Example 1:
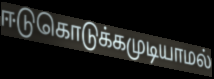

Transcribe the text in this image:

ஈடுகொடுக்கமுடியாமல்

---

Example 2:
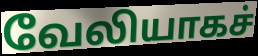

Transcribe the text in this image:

வேலியாகச்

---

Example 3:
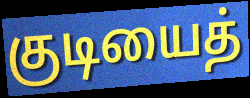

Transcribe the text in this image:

குடியைத்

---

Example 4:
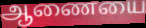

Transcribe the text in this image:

ஆணையை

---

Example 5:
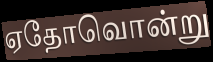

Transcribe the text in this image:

ஏதோவொன்று